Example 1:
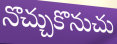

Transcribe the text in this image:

నొచ్చుకొనుచు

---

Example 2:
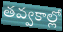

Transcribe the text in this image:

తవ్వకాల్లో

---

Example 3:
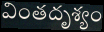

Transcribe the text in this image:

వింతదృశ్యం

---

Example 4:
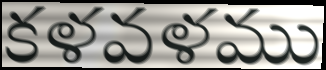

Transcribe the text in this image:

కళవళము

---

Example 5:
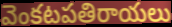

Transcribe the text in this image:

వెంకటపతిరాయలు